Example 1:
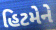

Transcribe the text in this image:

હિટમેને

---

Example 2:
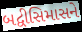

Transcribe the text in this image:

બદ્વીસિમાસને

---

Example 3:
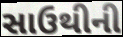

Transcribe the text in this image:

સાઉથીની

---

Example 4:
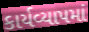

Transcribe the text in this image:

કાર્યવ્યાપમાં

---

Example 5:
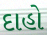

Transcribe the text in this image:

દાહો